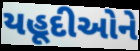
યહૂદીઓને